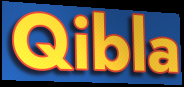
Qibla